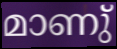
മാണു്